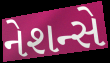
નેશન્સે